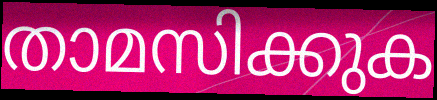
താമസിക്കുക